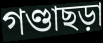
গণ্ডাছড়া